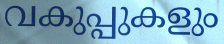
വകുപ്പുകളും